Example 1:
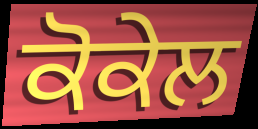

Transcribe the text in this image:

ਕੋਕੇਲ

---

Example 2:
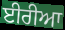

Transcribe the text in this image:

ਈਰੀਆ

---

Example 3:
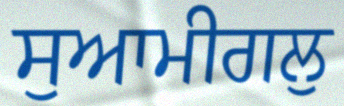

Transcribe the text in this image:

ਸੁਆਮੀਗਲੁ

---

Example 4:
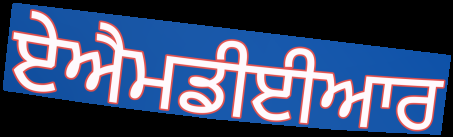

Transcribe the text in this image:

ਏਐਮਡੀਈਆਰ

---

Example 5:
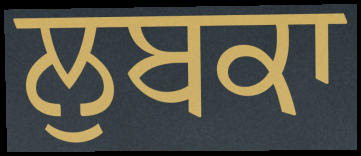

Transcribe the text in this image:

ਲੁਬਕਾ